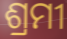
ଶ୍ରମୀ